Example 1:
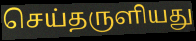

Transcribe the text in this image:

செய்தருளியது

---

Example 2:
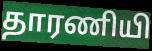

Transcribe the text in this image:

தாரணியி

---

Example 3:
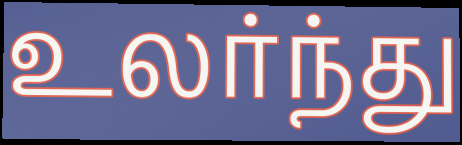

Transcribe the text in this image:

உலர்ந்து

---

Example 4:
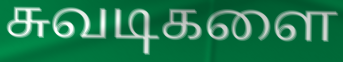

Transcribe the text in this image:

சுவடிகளை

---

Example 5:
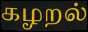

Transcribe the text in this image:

கழறல்